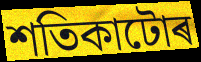
শতিকাটোৰ